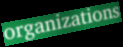
organizations